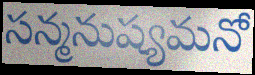
సన్మనుష్యమనో